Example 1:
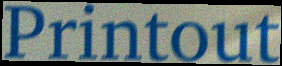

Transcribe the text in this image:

Printout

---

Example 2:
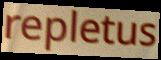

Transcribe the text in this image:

repletus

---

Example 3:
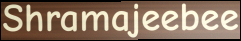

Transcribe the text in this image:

Shramajeebee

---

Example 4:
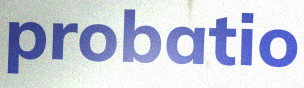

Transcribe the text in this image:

probatio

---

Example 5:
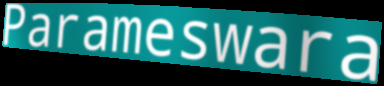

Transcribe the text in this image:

Parameswara